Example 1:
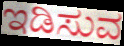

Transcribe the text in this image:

ಇಡಿಸುವ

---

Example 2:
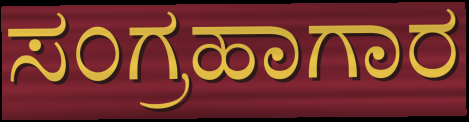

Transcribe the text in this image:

ಸಂಗ್ರಹಾಗಾರ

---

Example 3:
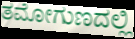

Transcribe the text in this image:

ತಮೋಗುಣದಲ್ಲಿ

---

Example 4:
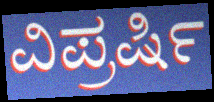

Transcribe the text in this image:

ವಿಪ್ರರ್ಷಿ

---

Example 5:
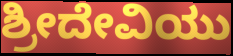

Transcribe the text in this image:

ಶ್ರೀದೇವಿಯು